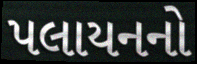
પલાયનનો